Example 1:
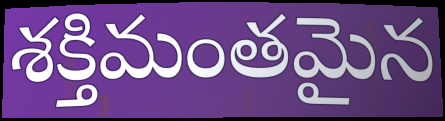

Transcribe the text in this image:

శక్తిమంతమైన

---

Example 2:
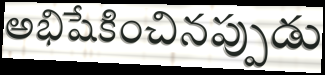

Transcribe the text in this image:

అభిషేకించినప్పుడు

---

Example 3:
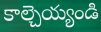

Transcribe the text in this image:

కాల్చెయ్యండి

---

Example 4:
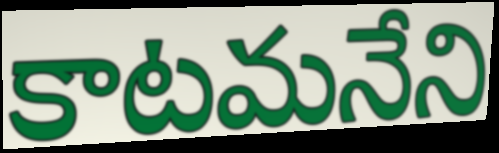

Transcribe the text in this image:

కాటమనేని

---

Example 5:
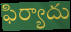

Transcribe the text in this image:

ఫిర్యాదు